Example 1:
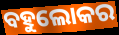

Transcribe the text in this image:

ବହୁଲୋକର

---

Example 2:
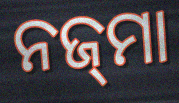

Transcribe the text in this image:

ନଜ୍‌ମା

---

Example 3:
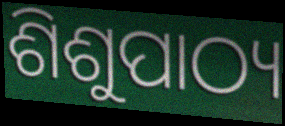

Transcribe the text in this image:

ଶିଶୁପାଠ୍ୟ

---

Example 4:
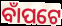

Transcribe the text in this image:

ବାଁପଟେ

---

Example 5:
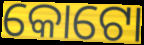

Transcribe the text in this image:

କୋଟୋ